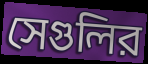
সেগুলির